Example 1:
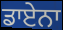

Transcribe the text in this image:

ਡਾਏਨਾ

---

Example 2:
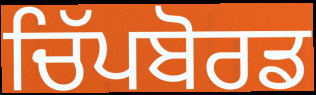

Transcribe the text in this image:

ਚਿੱਪਬੋਰਡ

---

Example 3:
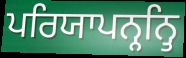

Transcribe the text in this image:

ਪਰਿਯਾਪਨ੍ਨਨ੍ਤਿ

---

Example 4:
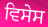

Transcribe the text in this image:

ਵਿਸੇਸ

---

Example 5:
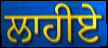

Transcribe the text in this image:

ਲਾਹੀਏ